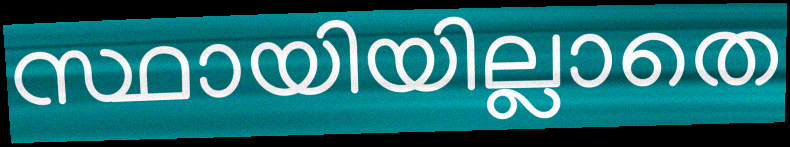
സ്ഥായിയില്ലാതെ